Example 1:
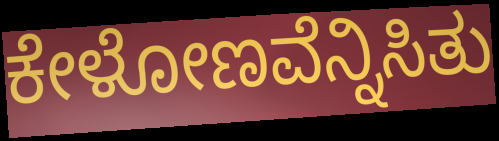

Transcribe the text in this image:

ಕೇಳೋಣವೆನ್ನಿಸಿತು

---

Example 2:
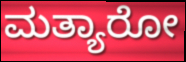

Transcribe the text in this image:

ಮತ್ಯಾರೋ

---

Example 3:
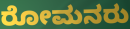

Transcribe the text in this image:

ರೋಮನರು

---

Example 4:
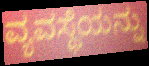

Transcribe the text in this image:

ವ್ಯವಸ್ಥೆಯನ್ನು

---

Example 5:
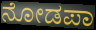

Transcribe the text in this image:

ನೋಡಪಾ